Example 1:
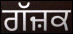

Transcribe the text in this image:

ਗੱਜ਼ਕ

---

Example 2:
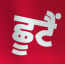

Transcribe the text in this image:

ਛੂਟੈਂ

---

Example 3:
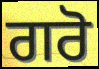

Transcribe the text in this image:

ਗਰੋ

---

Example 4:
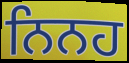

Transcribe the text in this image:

ਨਿਨਹ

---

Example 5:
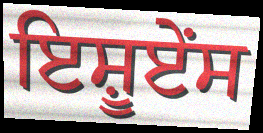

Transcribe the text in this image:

ਇਸ਼ੂਏਂਸ